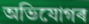
অভিযোগৰ